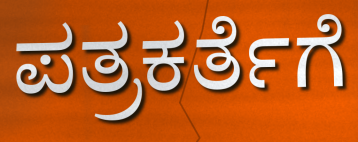
ಪತ್ರಕರ್ತೆಗೆ